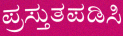
ಪ್ರಸ್ತುತಪಡಿಸಿ